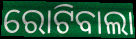
ରୋଟିବାଲା